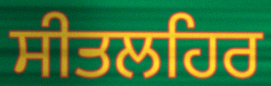
ਸੀਤਲਹਿਰ